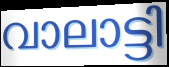
വാലാട്ടി